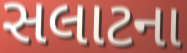
સલાટના